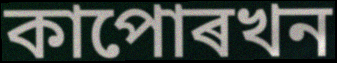
কাপোৰখন